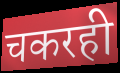
चकरही